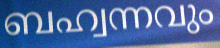
ബഹ്വന്നവും